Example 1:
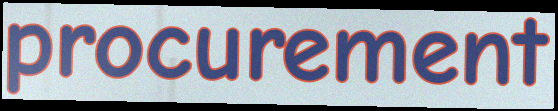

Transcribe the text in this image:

procurement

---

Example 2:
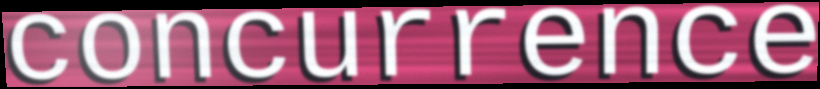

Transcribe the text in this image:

concurrence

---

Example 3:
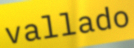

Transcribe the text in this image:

vallado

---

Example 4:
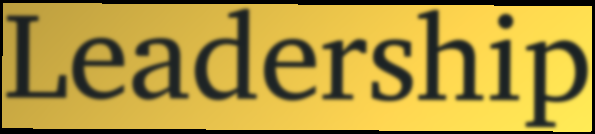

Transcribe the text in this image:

Leadership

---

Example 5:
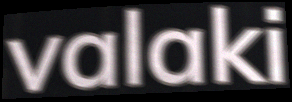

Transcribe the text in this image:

valaki